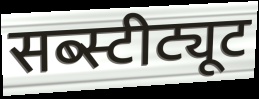
सब्स्टीट्यूट